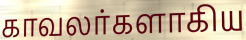
காவலர்களாகிய